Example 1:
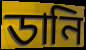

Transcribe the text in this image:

ডানি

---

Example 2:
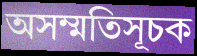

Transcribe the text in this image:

অসম্মতিসূচক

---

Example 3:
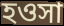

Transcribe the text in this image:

হওসা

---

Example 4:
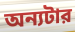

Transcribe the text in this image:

অন্যটার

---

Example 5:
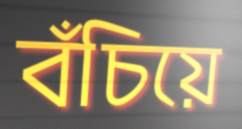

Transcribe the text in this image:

বঁচিয়ে